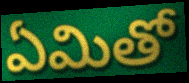
ఏమితో